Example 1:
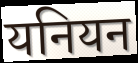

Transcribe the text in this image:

यनियन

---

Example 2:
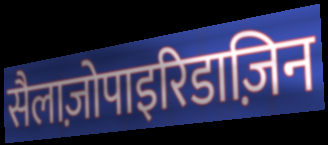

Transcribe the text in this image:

सैलाज़ोपाइरिडाज़िन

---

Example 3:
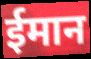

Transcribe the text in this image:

ईमान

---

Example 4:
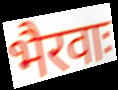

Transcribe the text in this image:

भैरवाः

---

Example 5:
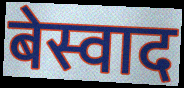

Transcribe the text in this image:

बेस्वाद